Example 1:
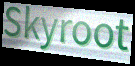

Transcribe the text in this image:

Skyroot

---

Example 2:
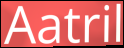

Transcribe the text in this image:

Aatril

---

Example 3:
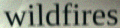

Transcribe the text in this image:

wildfires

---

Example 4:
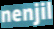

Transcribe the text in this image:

nenjil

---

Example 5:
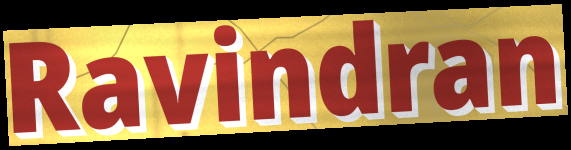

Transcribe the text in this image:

Ravindran